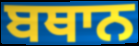
ਬਥਾਨ